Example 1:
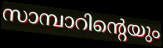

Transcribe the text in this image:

സാമ്പാറിന്റെയും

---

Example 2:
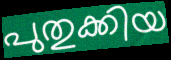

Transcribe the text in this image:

പുതുക്കിയ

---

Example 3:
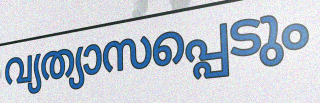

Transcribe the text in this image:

വ്യത്യാസപ്പെടും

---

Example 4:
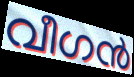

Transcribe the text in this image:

വീഗൻ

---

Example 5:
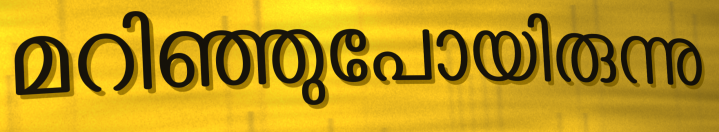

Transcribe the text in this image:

മറിഞ്ഞുപോയിരുന്നു